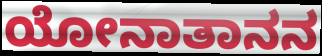
ಯೋನಾತಾನನ